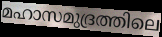
മഹാസമുദ്രത്തിലെ